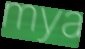
mya